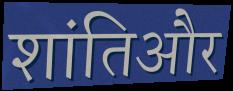
शांतिऔर